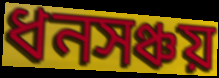
ধনসঞ্চয়